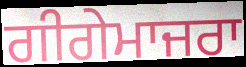
ਗੀਗੇਮਾਜਰਾ